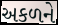
અકળને